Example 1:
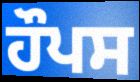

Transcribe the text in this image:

ਹੌਪਸ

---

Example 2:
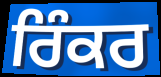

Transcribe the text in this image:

ਰਿੰਕਰ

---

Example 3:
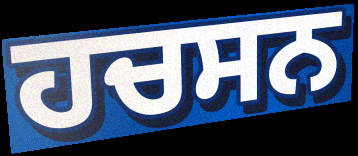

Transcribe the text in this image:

ਹਚਸਨ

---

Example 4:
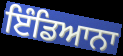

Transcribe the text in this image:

ਇੰਡਿਆਨਾ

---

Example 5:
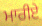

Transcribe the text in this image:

ਮਾਰੀਏ